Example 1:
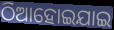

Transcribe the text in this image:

ଠିଆହୋଇଯାଇ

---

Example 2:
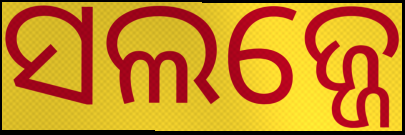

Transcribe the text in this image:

ସଲଜ୍ଜେ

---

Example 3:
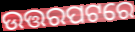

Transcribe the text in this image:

ଉତ୍ତରପଟରେ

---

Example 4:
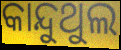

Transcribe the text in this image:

କାନ୍ଦୁଥୁଲ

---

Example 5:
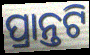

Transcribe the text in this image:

ପ୍ରାନ୍ତଟି